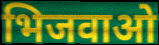
भिजवाओ